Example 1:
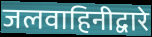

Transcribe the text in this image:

जलवाहिनीद्वारे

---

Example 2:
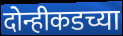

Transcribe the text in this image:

दोन्हीकडच्या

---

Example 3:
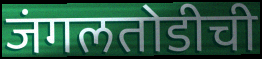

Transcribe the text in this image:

जंगलतोडीची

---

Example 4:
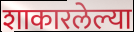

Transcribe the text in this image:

शाकारलेल्या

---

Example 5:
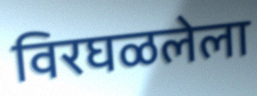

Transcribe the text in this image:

विरघळलेला